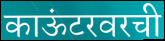
काऊंटरवरची